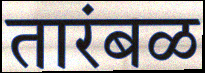
तारंबळ